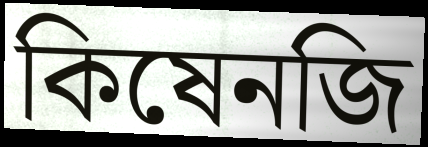
কিষেনজি